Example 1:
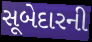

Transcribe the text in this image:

સૂબેદારની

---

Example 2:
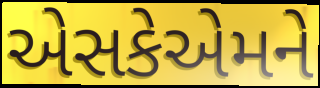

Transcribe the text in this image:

એસકેએમને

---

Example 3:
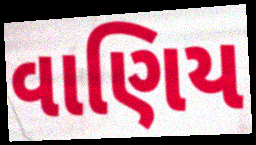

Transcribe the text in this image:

વાણિય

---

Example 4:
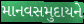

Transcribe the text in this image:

માનવસમુદાયને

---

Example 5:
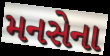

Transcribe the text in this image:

મનસેના